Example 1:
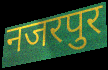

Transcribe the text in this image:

नजरपुर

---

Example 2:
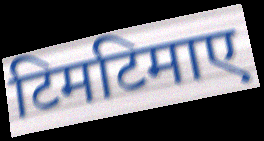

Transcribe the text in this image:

टिमटिमाए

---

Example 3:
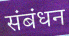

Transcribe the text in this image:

संबंधन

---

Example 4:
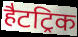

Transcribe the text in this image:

हैटट्रिक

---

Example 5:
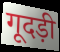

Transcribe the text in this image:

गूदड़ी